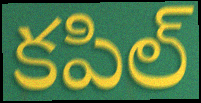
కపిల్